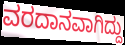
ವರದಾನವಾಗಿದ್ದು